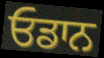
ਓਡਾਨ